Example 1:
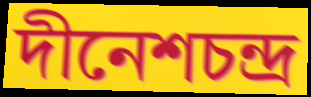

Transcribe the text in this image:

দীনেশচন্দ্র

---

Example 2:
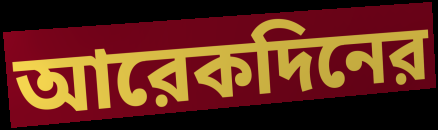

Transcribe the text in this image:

আরেকদিনের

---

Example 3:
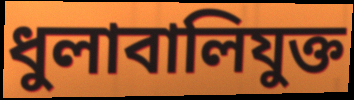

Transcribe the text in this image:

ধুলাবালিযুক্ত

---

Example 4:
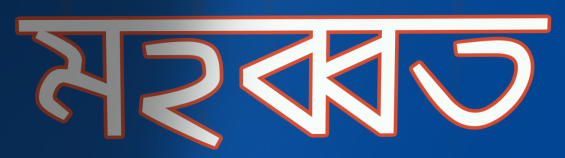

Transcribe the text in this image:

মহব্বত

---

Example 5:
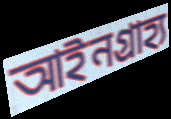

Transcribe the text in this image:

আইনগ্রাহ্য